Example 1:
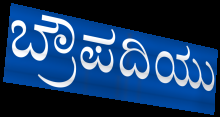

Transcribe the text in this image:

ಬ್ರೌಪದಿಯು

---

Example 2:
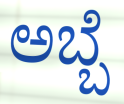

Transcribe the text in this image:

ಅಬ್ಬೆ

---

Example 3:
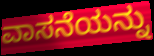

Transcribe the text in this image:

ವಾಸನೆಯನ್ನು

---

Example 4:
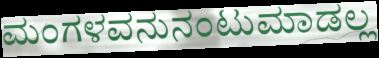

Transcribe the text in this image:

ಮಂಗಳವನುನಂಟುಮಾಡಲ್ಲ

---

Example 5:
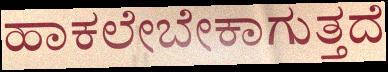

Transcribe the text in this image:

ಹಾಕಲೇಬೇಕಾಗುತ್ತದೆ